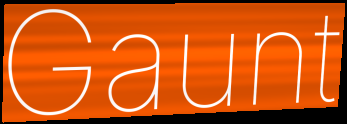
Gaunt